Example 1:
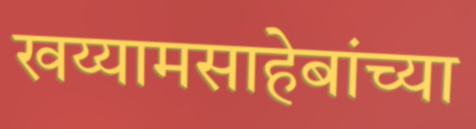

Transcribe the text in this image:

खय्यामसाहेबांच्या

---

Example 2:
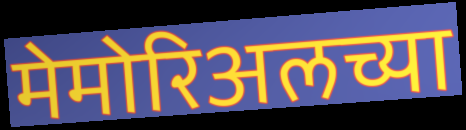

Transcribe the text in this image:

मेमोरिअलच्या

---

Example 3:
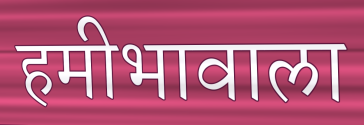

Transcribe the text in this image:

हमीभावाला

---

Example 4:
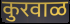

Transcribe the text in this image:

कुरवाळ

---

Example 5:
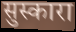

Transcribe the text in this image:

सुस्कारा